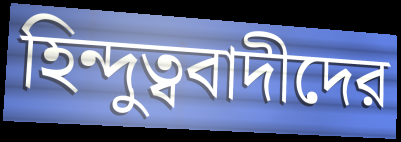
হিন্দুত্ববাদীদের